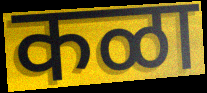
कळा